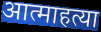
आत्माहत्या